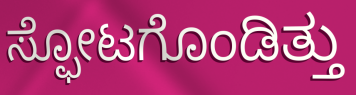
ಸ್ಫೋಟಗೊಂಡಿತ್ತು